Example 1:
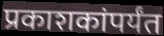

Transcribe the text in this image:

प्रकाशकांपर्यंत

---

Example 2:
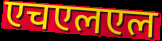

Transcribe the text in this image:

एचएलएल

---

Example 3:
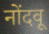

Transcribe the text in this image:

नोंदवू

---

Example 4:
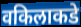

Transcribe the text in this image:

वकिलाकडे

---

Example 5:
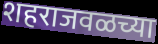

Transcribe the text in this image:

शहराजवळच्या